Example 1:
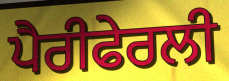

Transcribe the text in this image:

ਪੈਰੀਫੇਰਲੀ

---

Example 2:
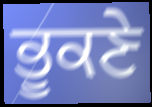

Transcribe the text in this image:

ਭੂਕਣੇ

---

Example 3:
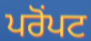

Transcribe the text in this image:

ਪਰੋਂਪਟ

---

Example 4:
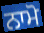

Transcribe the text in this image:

ਨਾਮੋ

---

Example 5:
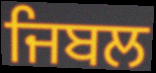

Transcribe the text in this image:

ਜਿਬਲ